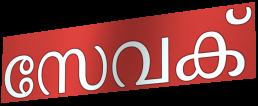
സേവക്